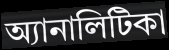
অ্যানালিটিকা